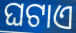
ଘଟାଏ